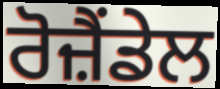
ਰੋਜ਼ੈਂਡੇਲ